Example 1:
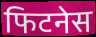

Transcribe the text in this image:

फिटनेस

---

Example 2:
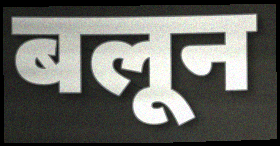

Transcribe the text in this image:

बलून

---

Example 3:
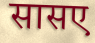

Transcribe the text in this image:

सासए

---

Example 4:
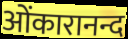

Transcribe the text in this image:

ओंकारानन्द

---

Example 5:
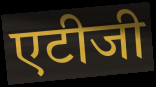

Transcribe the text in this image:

एटीजी